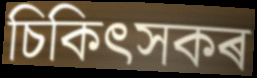
চিকিৎসকৰ